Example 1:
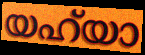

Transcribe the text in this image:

യഹ്‌യാ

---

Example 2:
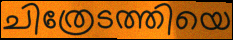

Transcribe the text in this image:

ചിത്രേടത്തിയെ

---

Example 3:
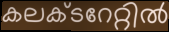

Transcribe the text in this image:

കലക്ടറേറ്റിൽ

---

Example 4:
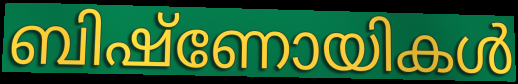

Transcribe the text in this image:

ബിഷ്ണോയികൾ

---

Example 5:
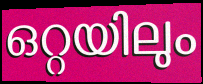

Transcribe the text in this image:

ഒറ്റയിലും